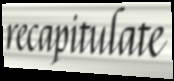
recapitulate